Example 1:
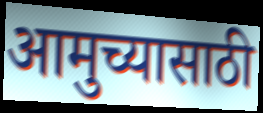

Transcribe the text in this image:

आमुच्यासाठी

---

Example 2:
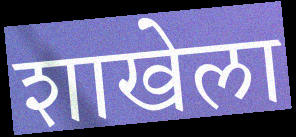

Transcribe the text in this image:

शाखेला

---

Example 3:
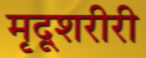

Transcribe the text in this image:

मृदूशरीरी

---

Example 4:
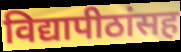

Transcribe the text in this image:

विद्यापीठांसह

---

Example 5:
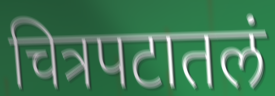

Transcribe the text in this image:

चित्रपटातलं